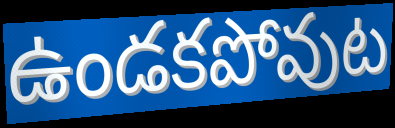
ఉండకపోవుట